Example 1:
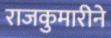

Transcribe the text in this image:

राजकुमारीने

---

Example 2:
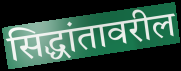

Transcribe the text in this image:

सिद्धांतावरील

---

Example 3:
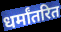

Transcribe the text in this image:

धर्मांतरित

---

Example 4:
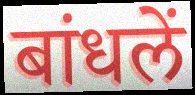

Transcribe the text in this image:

बांधलें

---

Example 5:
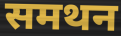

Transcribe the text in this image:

समथन